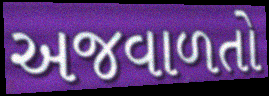
અજવાળતો